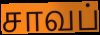
சாவப்